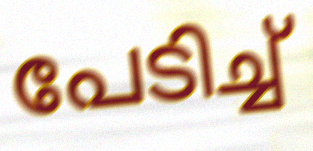
പേടിച്ച്